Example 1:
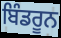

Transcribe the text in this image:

ਬਿੰਡਰੂਨ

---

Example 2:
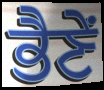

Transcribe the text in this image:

ਭੈਣੇਂ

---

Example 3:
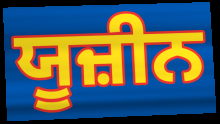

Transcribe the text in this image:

ਯੂਜ਼ੀਨ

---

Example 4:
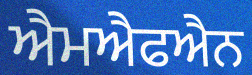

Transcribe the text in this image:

ਐਮਐਫਐਨ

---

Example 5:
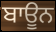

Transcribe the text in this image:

ਬਾਊਨ